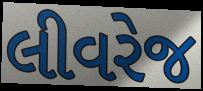
લીવરેજ